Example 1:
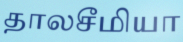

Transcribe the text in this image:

தாலசீமியா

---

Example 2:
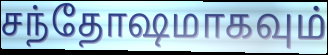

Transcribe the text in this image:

சந்தோஷமாகவும்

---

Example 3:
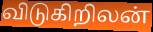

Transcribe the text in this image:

விடுகிறிலன்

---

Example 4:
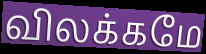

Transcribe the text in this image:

விலக்கமே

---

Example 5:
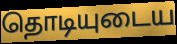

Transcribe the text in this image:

தொடியுடைய